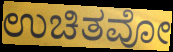
ಉಚಿತವೋ